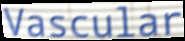
Vascular